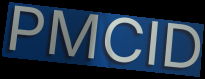
PMCID